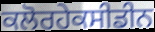
ਕਲੋਰਹੇਕਸੀਡੀਨ